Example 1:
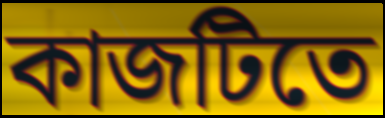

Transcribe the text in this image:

কাজটিতে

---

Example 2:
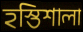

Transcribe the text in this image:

হস্তিশালা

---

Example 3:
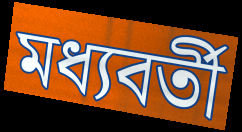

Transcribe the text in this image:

মধ্যবর্তী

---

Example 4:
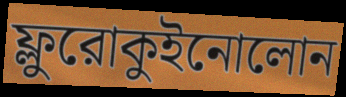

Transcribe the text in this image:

ফ্লুরোকুইনোলোন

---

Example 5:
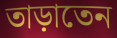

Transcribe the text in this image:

তাড়াতেন